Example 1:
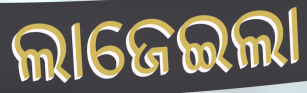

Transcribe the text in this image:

ଲାଜେଇଲା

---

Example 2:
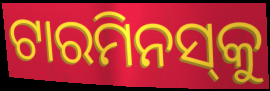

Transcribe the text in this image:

ଟାରମିନସ୍‌କୁ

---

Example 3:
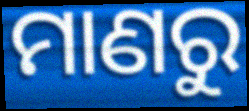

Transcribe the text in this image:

ମାଣରୁ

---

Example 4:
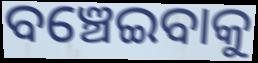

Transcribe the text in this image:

ବଞ୍ଚେଇବାକୁ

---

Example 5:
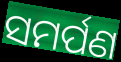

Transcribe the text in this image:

ସମର୍ପଣ